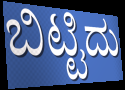
ಬಿಟ್ಟಿದು